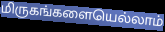
மிருகங்களையெல்லாம்